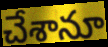
చేశానూ